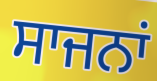
ਸਾਜਨਾਂ